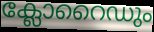
ക്ലോറൈഡും